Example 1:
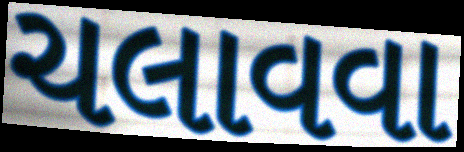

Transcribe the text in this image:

ચલાવવા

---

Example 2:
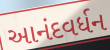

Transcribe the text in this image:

આનંદવર્ધન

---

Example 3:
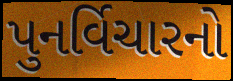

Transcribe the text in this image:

પુનર્વિચારનો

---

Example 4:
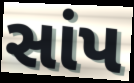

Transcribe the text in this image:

સાંપ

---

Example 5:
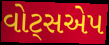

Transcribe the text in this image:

વોટ્સએપ